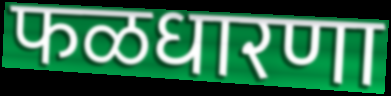
फळधारणा